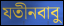
যতীনবাবু